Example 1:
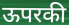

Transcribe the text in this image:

ऊपरकी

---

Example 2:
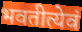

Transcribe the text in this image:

भवतीत्येवं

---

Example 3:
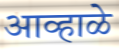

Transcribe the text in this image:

आव्हाळे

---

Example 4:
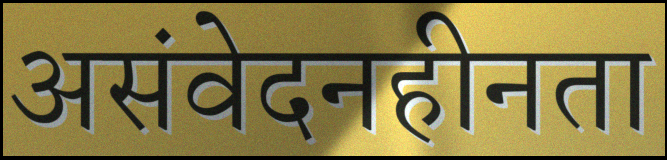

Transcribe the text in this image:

असंवेदनहीनता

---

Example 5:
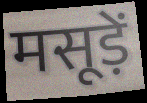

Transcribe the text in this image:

मसूड़ें